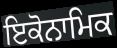
ਇਕੋਨਾਮਿਕ